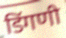
डिंगणी